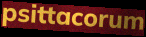
psittacorum